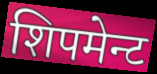
शिपमेन्ट